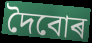
দৈবোৰ